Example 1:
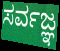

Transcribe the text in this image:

ಸರ್ವಜ್ಞ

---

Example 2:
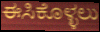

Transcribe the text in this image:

ಈಸಿಕೊಳ್ಳಲು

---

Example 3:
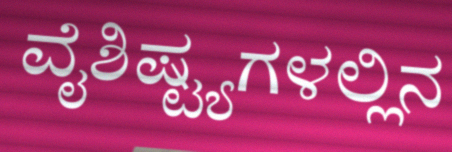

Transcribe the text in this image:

ವೈಶಿಷ್ಟ್ಯಗಳಲ್ಲಿನ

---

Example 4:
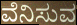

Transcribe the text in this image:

ವೆನಿಸುವ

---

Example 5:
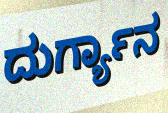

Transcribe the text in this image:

ದುರ್ಗ್ಯಾನ